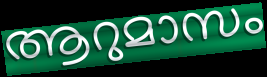
ആറുമാസം